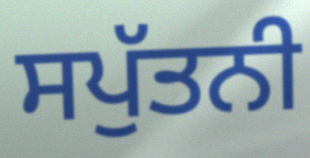
ਸਪੁੱਤਨੀ